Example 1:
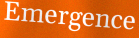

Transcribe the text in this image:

Emergence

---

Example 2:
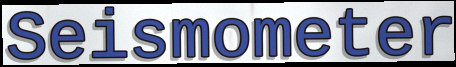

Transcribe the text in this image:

Seismometer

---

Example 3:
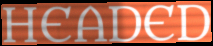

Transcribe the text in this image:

HEADED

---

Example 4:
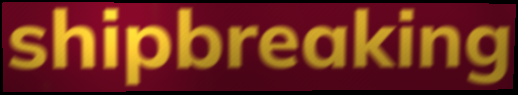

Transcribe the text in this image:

shipbreaking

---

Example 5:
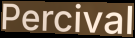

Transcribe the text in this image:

Percival